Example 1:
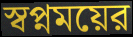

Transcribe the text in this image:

স্বপ্নময়ের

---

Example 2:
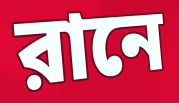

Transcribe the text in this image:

রানে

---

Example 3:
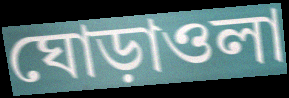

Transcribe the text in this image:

ঘোড়াওলা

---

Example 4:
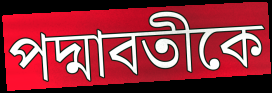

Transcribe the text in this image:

পদ্মাবতীকে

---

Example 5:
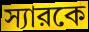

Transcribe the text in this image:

স্যারকে